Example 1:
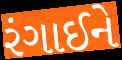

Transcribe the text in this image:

રંગાઈને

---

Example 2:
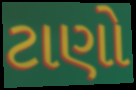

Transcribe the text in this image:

ટાણો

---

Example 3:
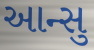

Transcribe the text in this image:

આન્સુ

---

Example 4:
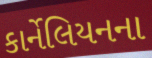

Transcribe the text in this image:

કાર્નેલિયનના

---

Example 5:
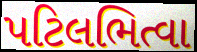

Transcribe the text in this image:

પટિલભિત્વા